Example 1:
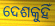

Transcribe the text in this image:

ଦେଶକୁହିଁ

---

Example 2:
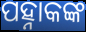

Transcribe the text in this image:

ପହ୍ନାକଙ୍କ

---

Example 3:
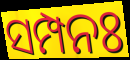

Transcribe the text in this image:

ସମ୍ପନଃ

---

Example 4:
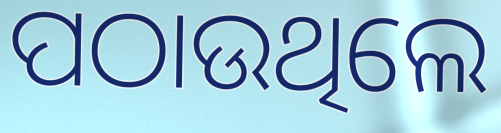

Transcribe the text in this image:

ପଠାଉଥିଲେ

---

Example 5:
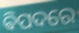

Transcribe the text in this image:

ଵିପଦରେ